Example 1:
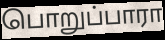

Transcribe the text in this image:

பொறுப்பாரா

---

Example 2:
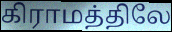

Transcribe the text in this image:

கிராமத்திலே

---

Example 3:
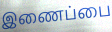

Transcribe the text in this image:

இணைப்பை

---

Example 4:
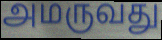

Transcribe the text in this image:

அமருவது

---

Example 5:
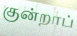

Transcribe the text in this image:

குன்றாப்